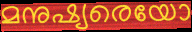
മനുഷ്യരെയോ